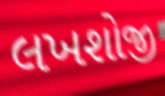
લખશોજી